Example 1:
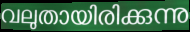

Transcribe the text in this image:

വലുതായിരിക്കുന്നു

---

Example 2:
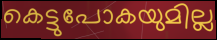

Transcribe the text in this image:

കെട്ടുപോകയുമില്ല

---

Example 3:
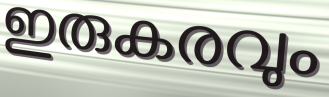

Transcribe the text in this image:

ഇരുകരവും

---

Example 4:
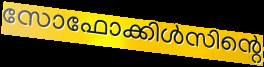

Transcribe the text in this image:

സോഫോക്കിൾസിന്റെ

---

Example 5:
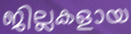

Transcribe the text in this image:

ജില്ലകളായ